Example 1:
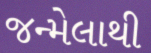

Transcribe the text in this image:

જન્મેલાથી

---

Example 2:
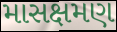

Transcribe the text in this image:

માસક્ષમણ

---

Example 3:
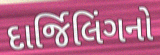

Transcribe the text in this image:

દાર્જિલિંગનો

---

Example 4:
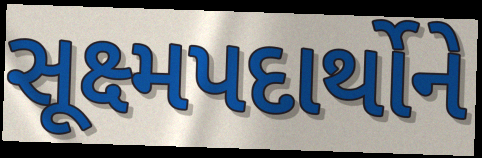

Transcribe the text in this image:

સૂક્ષ્મપદાર્થોને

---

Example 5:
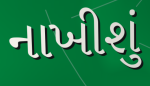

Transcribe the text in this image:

નાખીશું